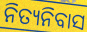
ନିତ୍ୟନିବାସ